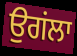
ਉਗਂਲਾ